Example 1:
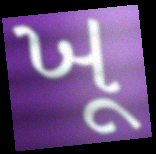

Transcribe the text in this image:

ખૂ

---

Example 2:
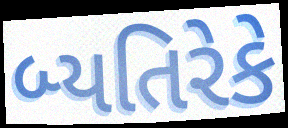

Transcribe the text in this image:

બ્યતિરેકે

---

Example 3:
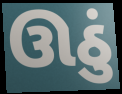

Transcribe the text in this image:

ઊઠું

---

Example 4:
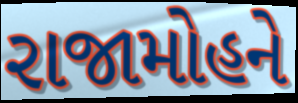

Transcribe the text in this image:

રાજામોહને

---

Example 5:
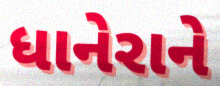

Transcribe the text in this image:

ધાનેરાને